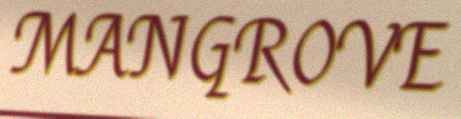
MANGROVE